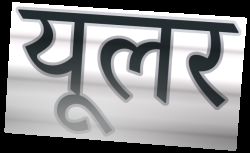
यूलर